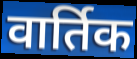
वार्तिक